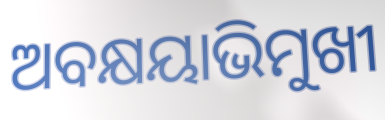
ଅବକ୍ଷୟାଭିମୁଖୀ